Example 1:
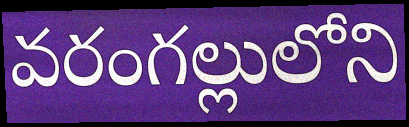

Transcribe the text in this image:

వరంగల్లులోని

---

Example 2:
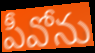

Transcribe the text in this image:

పీవోను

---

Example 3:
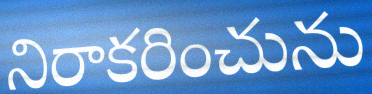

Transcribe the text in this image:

నిరాకరించును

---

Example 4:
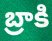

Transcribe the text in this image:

బ్రాకి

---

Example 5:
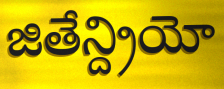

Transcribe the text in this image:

జితేన్ద్రియో